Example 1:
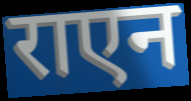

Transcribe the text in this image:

राएन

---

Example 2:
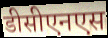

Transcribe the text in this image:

डीसीएनएस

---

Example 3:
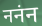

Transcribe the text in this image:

ननंन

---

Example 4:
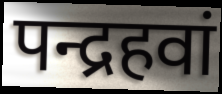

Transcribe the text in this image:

पन्द्रहवां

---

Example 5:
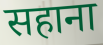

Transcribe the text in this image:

सहाना